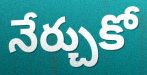
నేర్చుకో